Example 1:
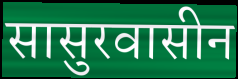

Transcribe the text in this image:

सासुरवासीन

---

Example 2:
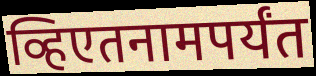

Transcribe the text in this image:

व्हिएतनामपर्यंत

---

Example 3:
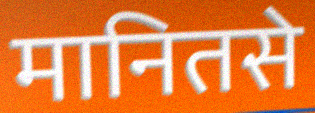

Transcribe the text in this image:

मानितसे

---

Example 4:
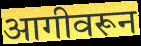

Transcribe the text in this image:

आगीवरून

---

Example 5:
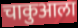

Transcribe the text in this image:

चाकुआला